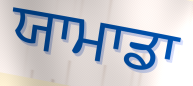
ਯਾਮਾਡਾ